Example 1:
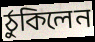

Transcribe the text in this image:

ঠুকিলেন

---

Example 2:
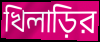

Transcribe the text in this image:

খিলাড়ির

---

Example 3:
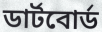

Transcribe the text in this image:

ডার্টবোর্ড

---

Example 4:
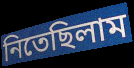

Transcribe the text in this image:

নিতেছিলাম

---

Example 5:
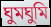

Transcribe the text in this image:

ঘুমঘুমি